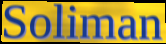
Soliman